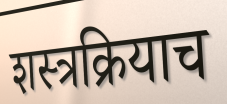
शस्त्रक्रियाच